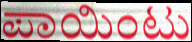
ಪಾಯಿಂಟು